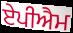
ਏਪੀਐਮ